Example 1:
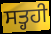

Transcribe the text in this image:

ਸਤ੍ਹਹੀ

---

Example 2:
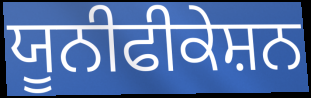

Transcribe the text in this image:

ਯੂਨੀਫੀਕੇਸ਼ਨ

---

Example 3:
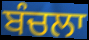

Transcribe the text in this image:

ਬੰਚਲਾ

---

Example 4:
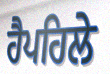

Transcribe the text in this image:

ਹੈਪਹਿਲੇ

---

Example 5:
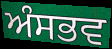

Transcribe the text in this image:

ਅੰਸਭਵ